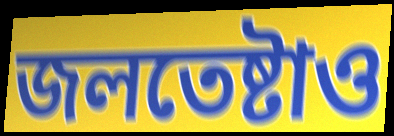
জলতেষ্টাও